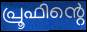
പ്രൂഫിന്റെ